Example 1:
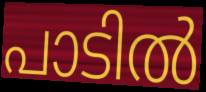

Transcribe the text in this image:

പാടിൽ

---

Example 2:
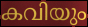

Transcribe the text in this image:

കവിയും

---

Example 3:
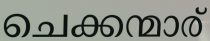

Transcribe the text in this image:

ചെക്കന്മാര്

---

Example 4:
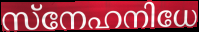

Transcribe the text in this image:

സ്നേഹനിധേ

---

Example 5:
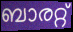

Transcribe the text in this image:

ബാരറ്റ്